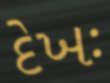
દેખઃ